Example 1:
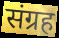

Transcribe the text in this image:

संग्रह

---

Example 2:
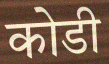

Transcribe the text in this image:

कोडी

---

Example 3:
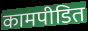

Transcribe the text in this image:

कामपीडित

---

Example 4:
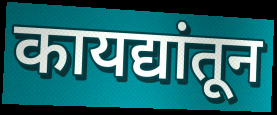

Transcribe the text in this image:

कायद्यांतून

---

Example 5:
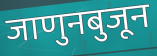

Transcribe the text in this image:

जाणुनबुजून